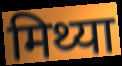
मिथ्या